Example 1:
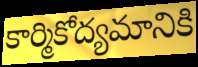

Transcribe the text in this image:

కార్మికోద్యమానికి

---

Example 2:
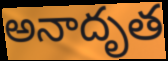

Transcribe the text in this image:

అనాదృత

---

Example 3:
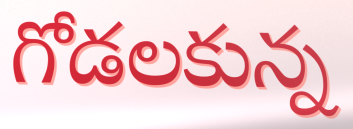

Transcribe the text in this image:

గోడలకున్న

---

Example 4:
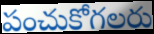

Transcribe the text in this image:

పంచుకోగలరు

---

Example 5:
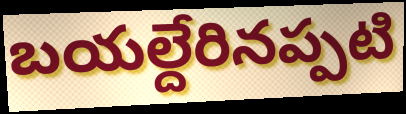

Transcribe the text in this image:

బయల్దేరినప్పటి